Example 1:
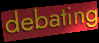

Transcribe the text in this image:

debating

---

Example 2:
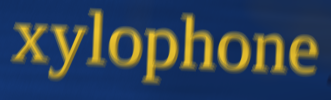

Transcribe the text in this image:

xylophone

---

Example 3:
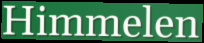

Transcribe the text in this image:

Himmelen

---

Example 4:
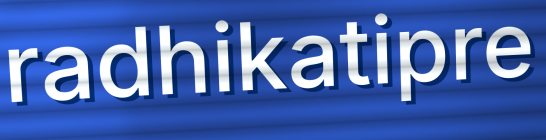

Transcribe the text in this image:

radhikatipre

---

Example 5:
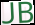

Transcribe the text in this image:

JB